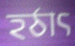
হঠাৎ